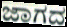
ಜಾಗದ